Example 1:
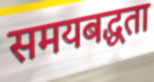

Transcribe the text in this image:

समयबद्धता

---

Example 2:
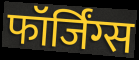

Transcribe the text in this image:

फॉर्जिंग्स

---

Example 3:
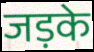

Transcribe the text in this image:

जड़के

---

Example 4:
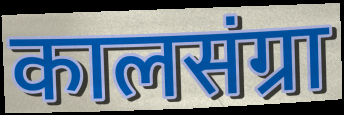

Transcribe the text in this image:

कालसंग्रा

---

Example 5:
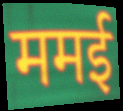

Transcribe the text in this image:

ममई